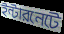
ইন্টারনেটে